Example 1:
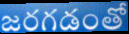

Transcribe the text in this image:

జరగడంతో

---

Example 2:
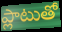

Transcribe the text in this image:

ప్లాటుతో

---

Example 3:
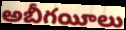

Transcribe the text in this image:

అబీగయీలు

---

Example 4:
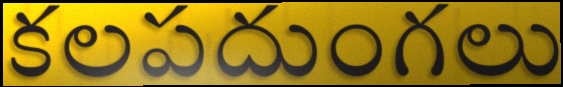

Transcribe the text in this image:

కలపదుంగలు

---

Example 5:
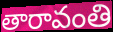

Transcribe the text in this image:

తారావంతి